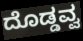
ದೊಡ್ಡವ್ವ